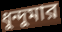
ধুন্দুমার